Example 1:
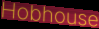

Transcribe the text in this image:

Hobhouse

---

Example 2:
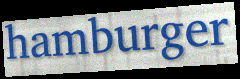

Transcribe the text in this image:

hamburger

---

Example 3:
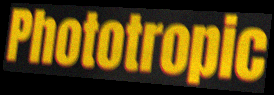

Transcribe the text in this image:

Phototropic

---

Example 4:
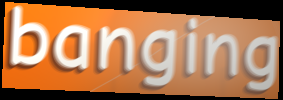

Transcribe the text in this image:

banging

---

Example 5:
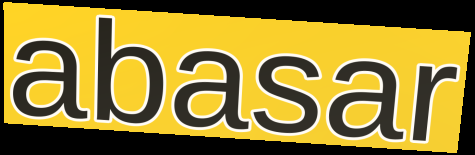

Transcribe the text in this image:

abasar